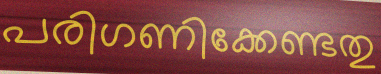
പരിഗണിക്കേണ്ടതു